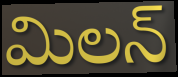
మిలన్